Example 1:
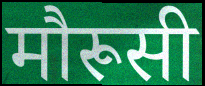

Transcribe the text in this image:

मौरूसी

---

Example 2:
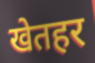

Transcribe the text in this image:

खेतहर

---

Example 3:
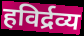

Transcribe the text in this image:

हविर्द्रव्य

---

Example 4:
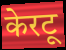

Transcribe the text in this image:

केरटू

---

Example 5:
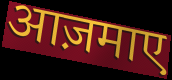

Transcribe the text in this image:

आज़माए